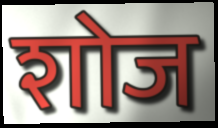
शोज